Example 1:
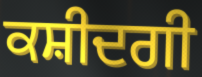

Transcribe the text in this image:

ਕਸ਼ੀਦਗੀ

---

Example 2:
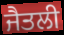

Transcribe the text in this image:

ਜੈਤਲੀ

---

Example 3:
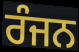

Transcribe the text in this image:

ਰੰਜਨ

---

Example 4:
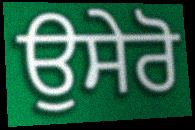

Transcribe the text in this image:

ਉਸੇਰੋ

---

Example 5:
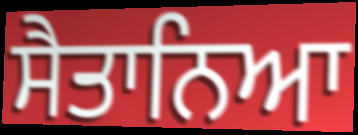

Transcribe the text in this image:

ਸੈਤਾਨਿਆ